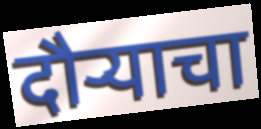
दौऱ्याचा